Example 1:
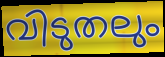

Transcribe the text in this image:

വിടുതലും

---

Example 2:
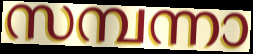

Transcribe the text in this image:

സമ്പന്നാ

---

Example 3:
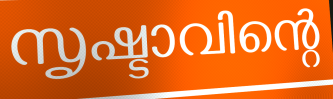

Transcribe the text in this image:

സൃഷ്ടാവിന്റെ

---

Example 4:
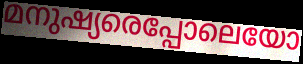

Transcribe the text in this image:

മനുഷ്യരെപ്പോലെയോ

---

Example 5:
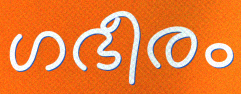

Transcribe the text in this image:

ഗഭീരം